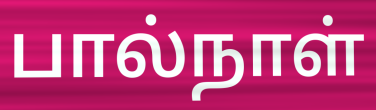
பால்நாள்